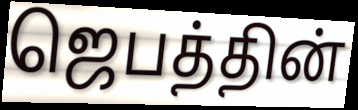
ஜெபத்தின்